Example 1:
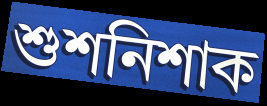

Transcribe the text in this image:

শুশনিশাক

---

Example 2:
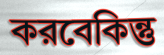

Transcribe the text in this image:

করবেকিন্তু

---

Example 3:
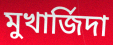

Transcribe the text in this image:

মুখার্জিদা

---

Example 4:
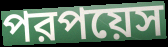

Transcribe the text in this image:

পরপয়েস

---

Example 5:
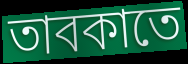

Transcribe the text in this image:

তাবকাতে